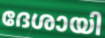
ദേശായി